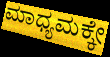
ಮಾಧ್ಯಮಕ್ಕೇ